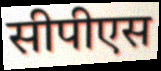
सीपीएस